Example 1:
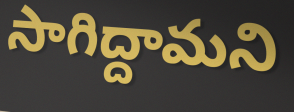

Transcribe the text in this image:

సాగిద్దామని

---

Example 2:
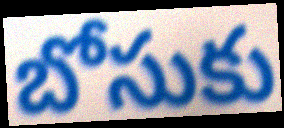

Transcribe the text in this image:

బోసుకు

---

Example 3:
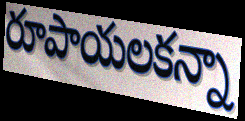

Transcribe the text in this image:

రూపాయలకన్నా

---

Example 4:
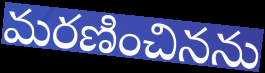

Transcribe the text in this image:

మరణించినను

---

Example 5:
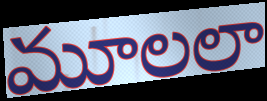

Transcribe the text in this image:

మూలలా